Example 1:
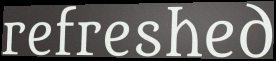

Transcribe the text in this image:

refreshed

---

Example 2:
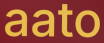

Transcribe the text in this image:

aato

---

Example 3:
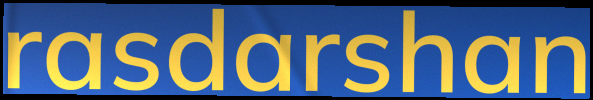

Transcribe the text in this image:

rasdarshan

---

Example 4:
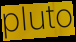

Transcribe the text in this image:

pluto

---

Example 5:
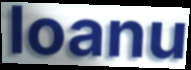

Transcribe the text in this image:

loanu